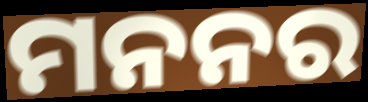
ମନନର